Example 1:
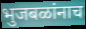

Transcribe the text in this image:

भुजबळांनाच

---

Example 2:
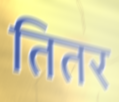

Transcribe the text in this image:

तितर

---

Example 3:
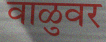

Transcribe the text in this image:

वाळुवर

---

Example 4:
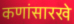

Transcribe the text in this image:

कणांसारखे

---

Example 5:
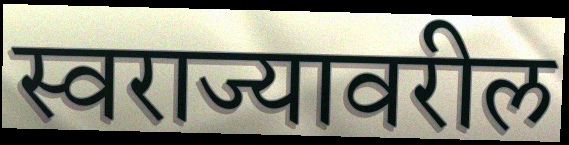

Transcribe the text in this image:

स्वराज्यावरील